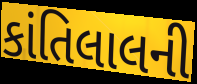
કાંતિલાલની